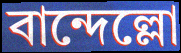
বান্দেল্লো